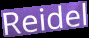
Reidel